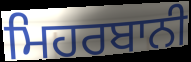
ਮਿਹਰਬਾਨੀ